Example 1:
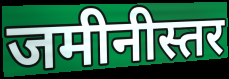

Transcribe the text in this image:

जमीनीस्तर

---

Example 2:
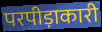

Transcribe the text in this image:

परपीड़ाकारी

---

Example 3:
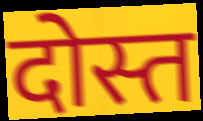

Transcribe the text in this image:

दोस्‍त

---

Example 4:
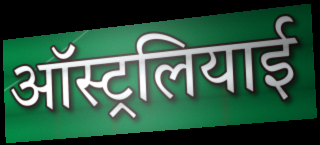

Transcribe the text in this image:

ऑस्ट्रलियाई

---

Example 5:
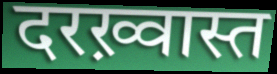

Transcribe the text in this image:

दरख़्वास्त